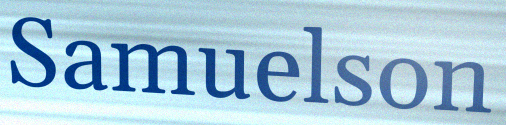
Samuelson